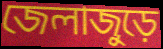
জেলাজুড়ে